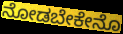
ನೋಡಬೇಕೇನೊ